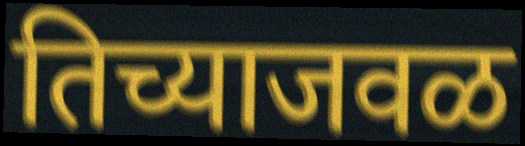
तिच्याजवळ